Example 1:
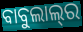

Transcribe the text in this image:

ବାବୁଲାଲ୍‍ର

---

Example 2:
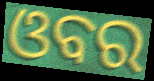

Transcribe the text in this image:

ଓବର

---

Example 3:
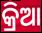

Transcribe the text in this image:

କ୍ରିଆ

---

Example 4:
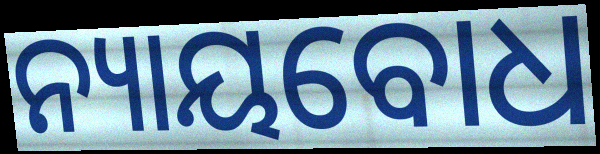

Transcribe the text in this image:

ନ୍ୟାୟବୋଧ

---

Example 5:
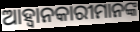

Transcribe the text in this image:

ଆହ୍ଵାନକାରୀମାନଙ୍କ